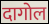
दागोल